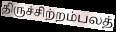
திருச்சிற்றம்பலத்